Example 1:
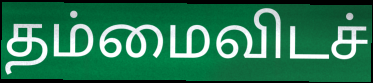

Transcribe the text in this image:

தம்மைவிடச்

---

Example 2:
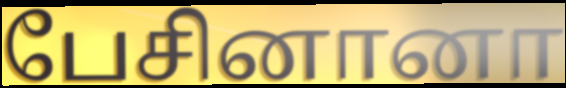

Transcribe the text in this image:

பேசினானா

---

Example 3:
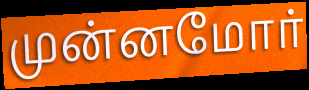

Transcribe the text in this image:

முன்னமோர்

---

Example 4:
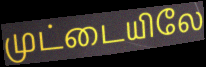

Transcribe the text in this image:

முட்டையிலே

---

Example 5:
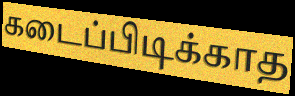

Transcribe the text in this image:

கடைப்பிடிக்காத